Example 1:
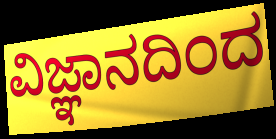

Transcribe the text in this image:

ವಿಜ್ಞಾನದಿಂದ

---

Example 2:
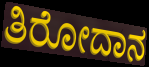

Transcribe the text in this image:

ತಿರೋದಾನ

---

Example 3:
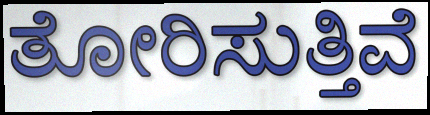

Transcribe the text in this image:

ತೋರಿಸುತ್ತಿವೆ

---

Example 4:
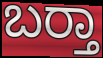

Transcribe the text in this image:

ಬರ‍್ತಾ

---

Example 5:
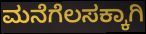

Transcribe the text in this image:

ಮನೆಗೆಲಸಕ್ಕಾಗಿ